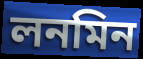
লনমিন